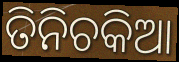
ତିନିଚକିଆ